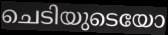
ചെടിയുടെയോ